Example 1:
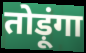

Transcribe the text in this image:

तोड़ूंगा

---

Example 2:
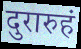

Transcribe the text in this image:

दुरारुहं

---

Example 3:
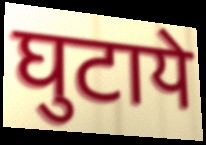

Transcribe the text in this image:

घुटाये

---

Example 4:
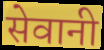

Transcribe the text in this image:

सेवानी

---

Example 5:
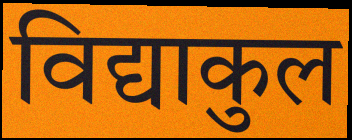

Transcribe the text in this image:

विद्याकुल